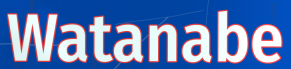
Watanabe